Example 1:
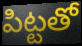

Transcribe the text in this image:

పిట్టతో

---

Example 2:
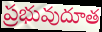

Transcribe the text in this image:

ప్రభువుదూత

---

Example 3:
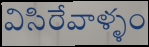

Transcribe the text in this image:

విసిరేవాళ్ళం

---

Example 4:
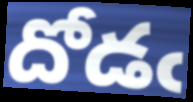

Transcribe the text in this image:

దోడఁ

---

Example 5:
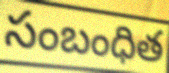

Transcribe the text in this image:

సంబంధిత